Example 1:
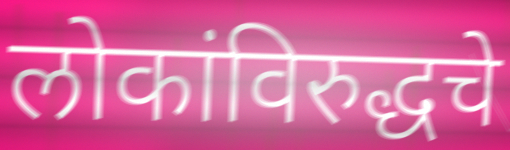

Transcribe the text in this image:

लोकांविरुद्धचे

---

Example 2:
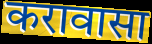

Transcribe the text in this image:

करावासा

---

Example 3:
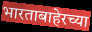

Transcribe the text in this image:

भारताबाहेरच्या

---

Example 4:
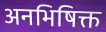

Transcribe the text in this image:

अनभिषिक्त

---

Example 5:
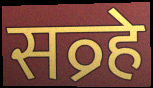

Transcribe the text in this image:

सव्र्हे